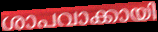
ശാപവാക്കായി